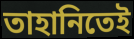
তাহানিতেই